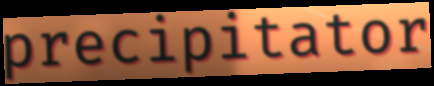
precipitator